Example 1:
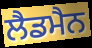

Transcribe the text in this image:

ਲੈਡਮੈਨ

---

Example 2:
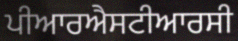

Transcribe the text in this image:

ਪੀਆਰਐਸਟੀਆਰਸੀ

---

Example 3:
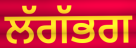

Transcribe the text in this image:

ਲੱਗੱਭਗ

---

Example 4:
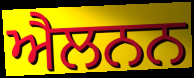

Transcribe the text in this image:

ਐਲਨਨ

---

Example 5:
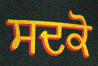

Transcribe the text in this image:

ਸਦਕੋ